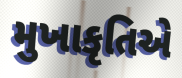
મુખાકૃતિએ